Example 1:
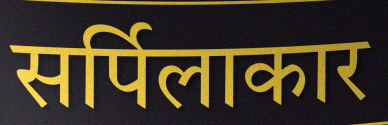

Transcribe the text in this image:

सर्पिलाकार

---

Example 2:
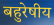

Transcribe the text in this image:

बहुरेषीय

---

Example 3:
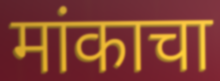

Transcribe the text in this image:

मांकाचा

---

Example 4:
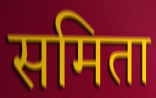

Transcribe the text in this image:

समिता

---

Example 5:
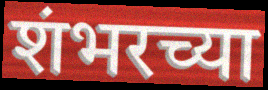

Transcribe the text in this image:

शंभरच्या